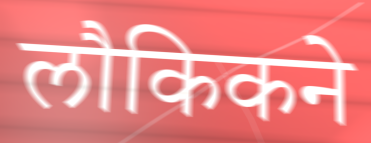
लौकिकने